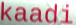
kaadi